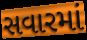
સવારમાં